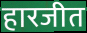
हारजीत